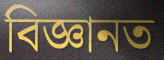
বিজ্ঞানত